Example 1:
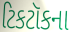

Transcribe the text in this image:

ટિકટૉકના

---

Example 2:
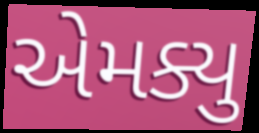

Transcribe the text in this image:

એમક્યુ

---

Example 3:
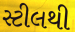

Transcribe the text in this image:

સ્ટીલથી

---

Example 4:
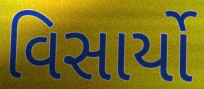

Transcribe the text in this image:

વિસાર્યો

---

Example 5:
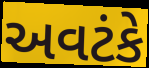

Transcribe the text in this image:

અવટંકે